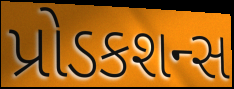
પ્રોડકશન્સ